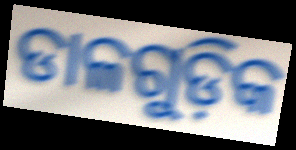
ଡାଳଗୁଡ଼ିକ